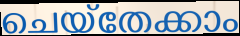
ചെയ്‌തേക്കാം